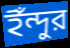
ইঁন্দুর